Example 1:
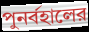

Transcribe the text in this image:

পুনর্বহালের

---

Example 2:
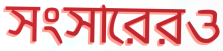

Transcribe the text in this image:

সংসারেরও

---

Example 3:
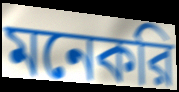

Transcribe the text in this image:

মনেকরি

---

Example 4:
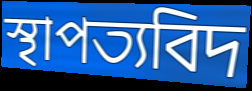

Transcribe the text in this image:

স্থাপত্যবিদ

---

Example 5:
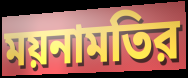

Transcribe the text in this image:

ময়নামতির